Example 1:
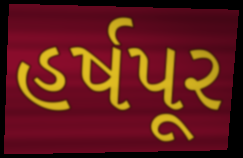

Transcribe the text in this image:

હર્ષપૂર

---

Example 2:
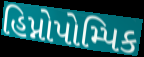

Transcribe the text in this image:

હિપ્નોપોમ્પિક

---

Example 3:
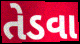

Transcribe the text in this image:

તેડવા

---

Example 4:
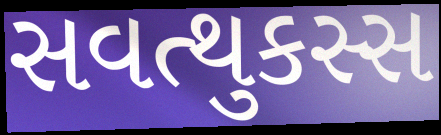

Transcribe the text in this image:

સવત્થુકસ્સ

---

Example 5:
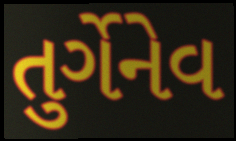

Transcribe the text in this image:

તુર્ગેનેવ